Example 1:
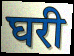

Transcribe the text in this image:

घरी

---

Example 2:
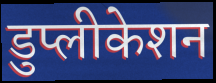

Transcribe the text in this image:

डुप्लीकेशन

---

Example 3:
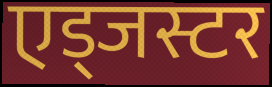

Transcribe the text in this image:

एड्जस्टर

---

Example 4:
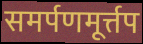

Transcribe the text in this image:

समर्पणमूर्त्तप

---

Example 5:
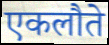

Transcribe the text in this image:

एकलौते